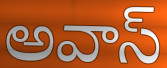
అవాస్